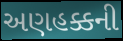
અણહક્કની